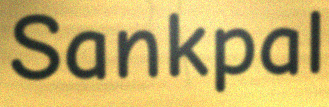
Sankpal